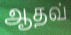
ஆதவ்